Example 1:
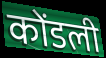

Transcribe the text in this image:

कोंडली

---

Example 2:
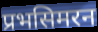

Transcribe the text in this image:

प्रभसिमरन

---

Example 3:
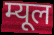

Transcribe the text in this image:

म्यूल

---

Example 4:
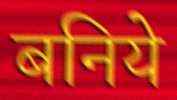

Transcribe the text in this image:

बनिये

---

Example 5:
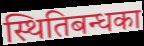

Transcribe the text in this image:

स्थितिबन्धका